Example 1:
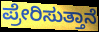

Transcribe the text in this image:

ಪ್ರೇರಿಸುತ್ತಾನೆ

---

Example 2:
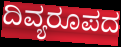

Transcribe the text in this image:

ದಿವ್ಯರೂಪದ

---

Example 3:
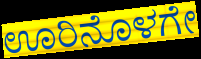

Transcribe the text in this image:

ಊರಿನೊಳಗೇ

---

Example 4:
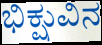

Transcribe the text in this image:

ಭಿಕ್ಷುವಿನ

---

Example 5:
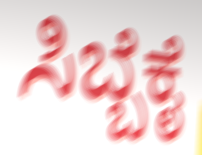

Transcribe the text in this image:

ಸಿಬ್ಬೆಕೈ